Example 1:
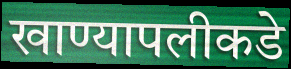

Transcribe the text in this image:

खाण्यापलीकडे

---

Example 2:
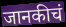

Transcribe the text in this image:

जानकीचं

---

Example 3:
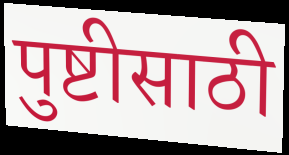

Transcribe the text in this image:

पुष्टीसाठी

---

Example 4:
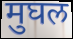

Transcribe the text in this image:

मुघल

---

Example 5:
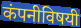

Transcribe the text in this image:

कंपनीविषयी